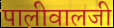
पालीवालजी